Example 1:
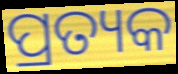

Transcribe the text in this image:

ପ୍ରତ୍ୟକ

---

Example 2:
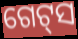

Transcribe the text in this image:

ଗେଟ୍‌ସ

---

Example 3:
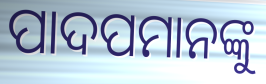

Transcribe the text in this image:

ପାଦପମାନଙ୍କୁ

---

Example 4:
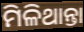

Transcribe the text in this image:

ମିଳିଥାନ୍ତା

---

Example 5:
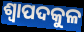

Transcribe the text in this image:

ଶ୍ୱାପଦକୁଳ